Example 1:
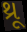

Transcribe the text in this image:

થ્રૂ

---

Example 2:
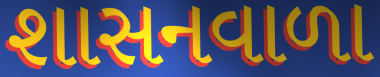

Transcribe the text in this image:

શાસનવાળા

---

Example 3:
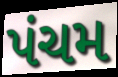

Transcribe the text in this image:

પંચમ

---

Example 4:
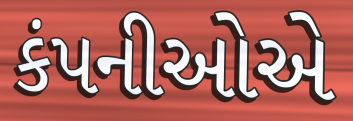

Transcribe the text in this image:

કંપનીઓએ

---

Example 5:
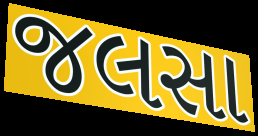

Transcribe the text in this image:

જલસા